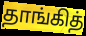
தாங்கித்